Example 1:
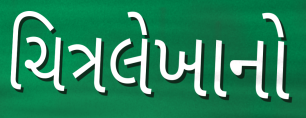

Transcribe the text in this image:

ચિત્રલેખાનો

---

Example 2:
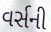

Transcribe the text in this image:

વર્સની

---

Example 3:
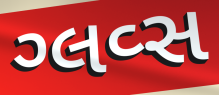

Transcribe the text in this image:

ગ્લવ્સ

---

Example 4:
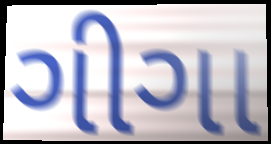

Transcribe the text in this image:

ગીગા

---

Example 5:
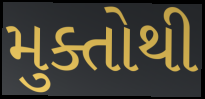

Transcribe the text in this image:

મુક્તોથી